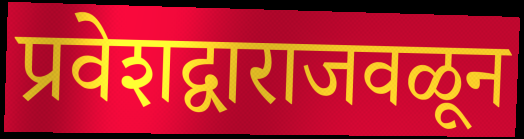
प्रवेशद्वाराजवळून